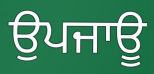
ਉਪਜਾਊ